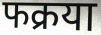
फक्रया